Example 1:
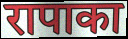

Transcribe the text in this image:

रापाका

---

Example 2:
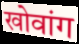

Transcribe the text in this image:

खोवांग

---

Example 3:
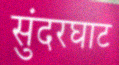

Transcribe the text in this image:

सुंदरघाट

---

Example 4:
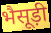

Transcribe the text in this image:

भैसूड़ी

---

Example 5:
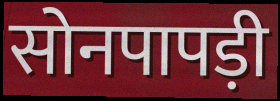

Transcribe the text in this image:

सोनपापड़ी